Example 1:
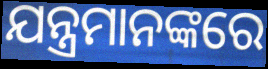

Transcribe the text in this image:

ଯନ୍ତ୍ରମାନଙ୍କରେ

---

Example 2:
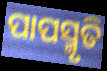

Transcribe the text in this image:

ପାପସ୍ମୃତି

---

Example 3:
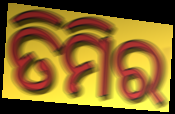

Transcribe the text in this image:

ତିମିର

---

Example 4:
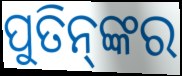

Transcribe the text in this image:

ପୁତିନ୍‌ଙ୍କର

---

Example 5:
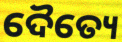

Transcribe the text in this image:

ଦୈତ୍ୟେ